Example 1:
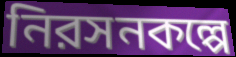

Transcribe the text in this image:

নিরসনকল্পে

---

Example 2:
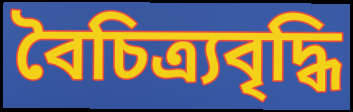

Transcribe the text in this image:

বৈচিত্র্যবৃদ্ধি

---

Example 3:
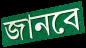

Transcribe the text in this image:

জানবে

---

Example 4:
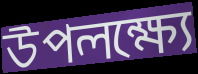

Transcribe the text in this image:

উপলক্ষ্যে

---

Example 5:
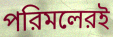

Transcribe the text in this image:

পরিমলেরই